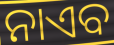
ନାଏବ